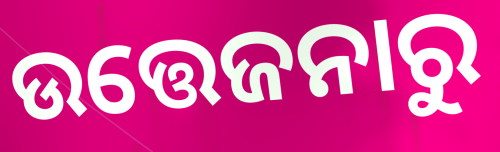
ଉତ୍ତେଜନାରୁ